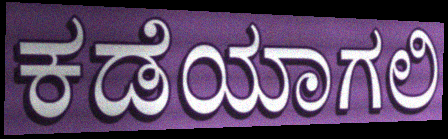
ಕಡೆಯಾಗಲಿ